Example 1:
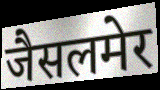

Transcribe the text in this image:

जैसलमेर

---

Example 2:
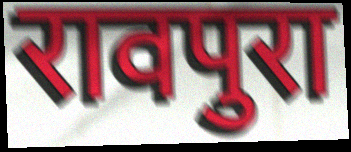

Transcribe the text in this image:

रावपुरा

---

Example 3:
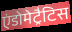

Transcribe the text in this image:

एंडोमेट्रैटिस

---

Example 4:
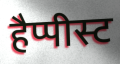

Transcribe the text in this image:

हैप्पीस्ट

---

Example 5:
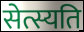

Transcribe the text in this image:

सेत्स्यति